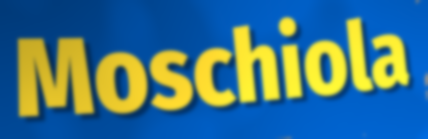
Moschiola